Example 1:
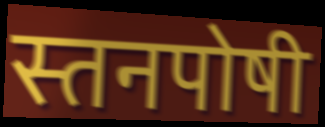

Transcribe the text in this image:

स्तनपोषी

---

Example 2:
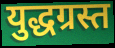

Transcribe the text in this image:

युद्धग्रस्त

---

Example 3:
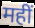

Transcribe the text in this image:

महीं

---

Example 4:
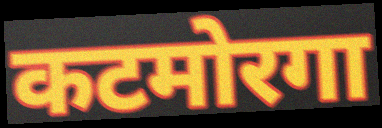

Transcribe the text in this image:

कटमोरगा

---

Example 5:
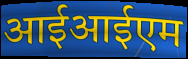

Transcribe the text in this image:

आईआईएम